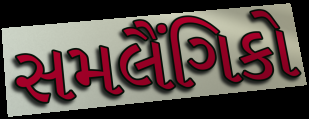
સમલૈંગિકો